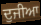
ਦੁਜੀਆ